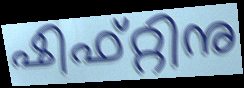
ഷിഫ്റ്റിനു